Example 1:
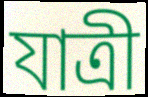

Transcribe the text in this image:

যাত্রী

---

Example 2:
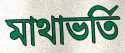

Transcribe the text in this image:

মাথাভর্তি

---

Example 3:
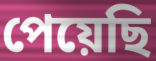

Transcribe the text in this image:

পেয়েছি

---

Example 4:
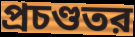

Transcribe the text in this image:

প্রচণ্ডতর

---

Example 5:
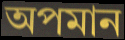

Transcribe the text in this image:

অপমান